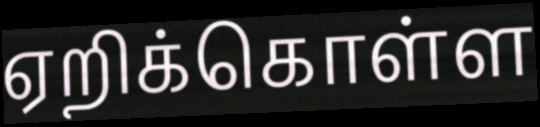
ஏறிக்கொள்ள